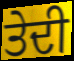
ਤੇਦੀ